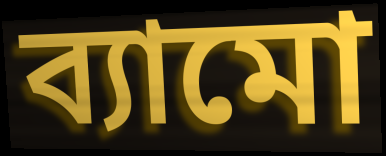
ব্যামো